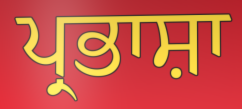
ਪ੍ਰਭਾਸ਼ਾ